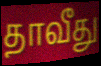
தாவீது